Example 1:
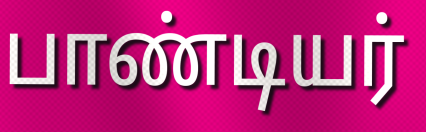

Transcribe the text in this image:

பாண்டியர்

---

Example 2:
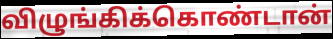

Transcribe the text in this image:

விழுங்கிக்கொண்டான்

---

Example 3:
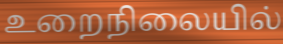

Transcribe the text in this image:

உறைநிலையில்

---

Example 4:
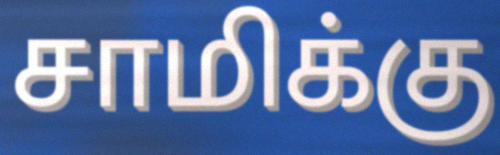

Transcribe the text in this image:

சாமிக்கு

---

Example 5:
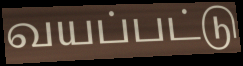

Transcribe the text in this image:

வயப்பட்டு